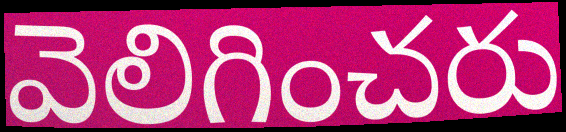
వెలిగించరు